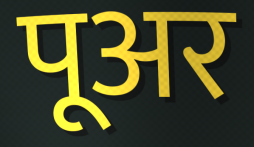
पूअर